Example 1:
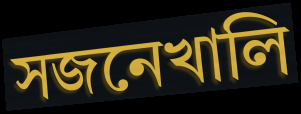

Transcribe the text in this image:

সজনেখালি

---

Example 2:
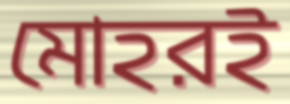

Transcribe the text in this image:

মোহরই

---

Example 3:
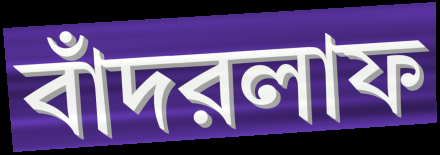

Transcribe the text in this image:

বাঁদরলাফ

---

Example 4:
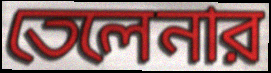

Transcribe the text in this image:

তেলেনার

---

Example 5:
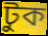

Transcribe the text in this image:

টুক